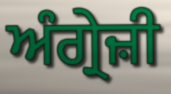
ਅੰਗ੍ਰੇਜ਼ੀ